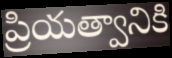
ప్రియత్వానికి